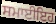
ਸਮਾਈਇਹ